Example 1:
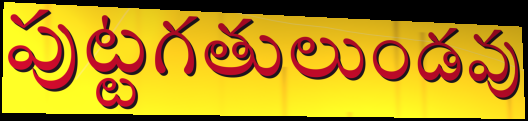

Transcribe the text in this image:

పుట్టగతులుండవు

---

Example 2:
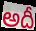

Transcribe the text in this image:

అదీ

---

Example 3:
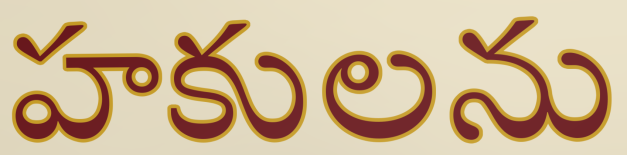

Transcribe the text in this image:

హకులను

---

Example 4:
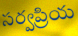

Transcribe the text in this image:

సర్వప్రియ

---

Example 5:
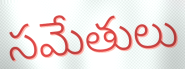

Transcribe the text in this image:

సమేతులు